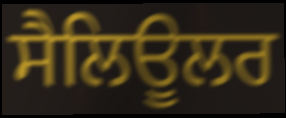
ਸੈਲਿਊਲਰ